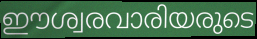
ഈശ്വരവാരിയരുടെ